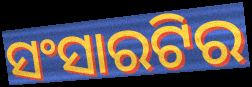
ସଂସାରଟିର